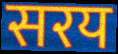
सरय